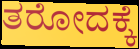
ತರೋದಕ್ಕೆ